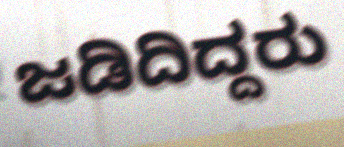
ಜಡಿದಿದ್ದರು